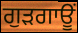
ਗੁੜਗਾਊਂ